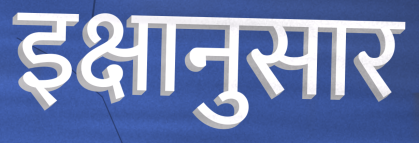
इक्षानुसार